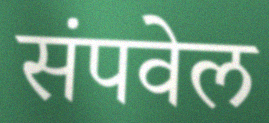
संपवेल